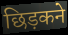
छिड़कने